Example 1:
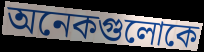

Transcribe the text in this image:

অনেকগুলোকে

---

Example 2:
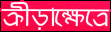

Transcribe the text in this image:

ক্রীড়াক্ষেত্রে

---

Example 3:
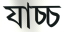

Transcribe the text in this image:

যাচ্চ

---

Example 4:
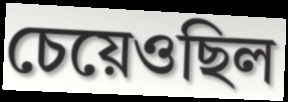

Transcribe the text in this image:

চেয়েওছিল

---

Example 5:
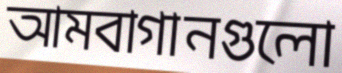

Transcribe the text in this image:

আমবাগানগুলো